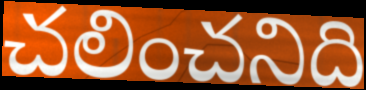
చలించనిది